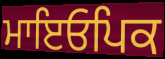
ਮਾਇਓਪਿਕ